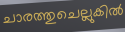
ചാരത്തുചെല്ലുകിൽ